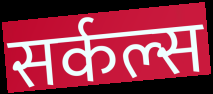
सर्कल्‍स